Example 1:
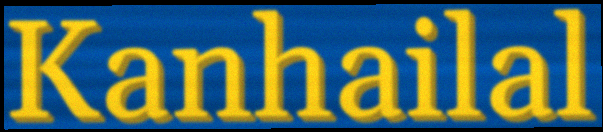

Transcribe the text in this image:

Kanhailal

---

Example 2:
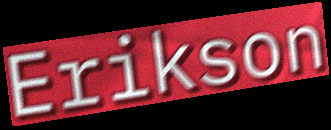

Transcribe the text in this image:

Erikson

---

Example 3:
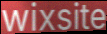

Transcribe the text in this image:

wixsite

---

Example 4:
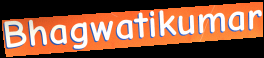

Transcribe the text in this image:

Bhagwatikumar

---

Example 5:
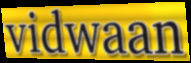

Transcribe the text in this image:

vidwaan